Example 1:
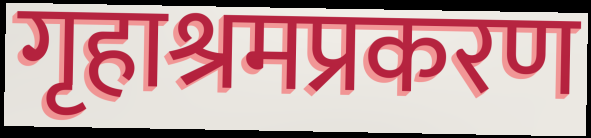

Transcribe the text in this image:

गृहाश्रमप्रकरण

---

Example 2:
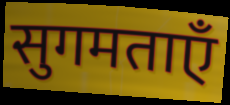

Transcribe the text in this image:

सुगमताएँ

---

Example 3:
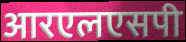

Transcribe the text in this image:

आरएलएसपी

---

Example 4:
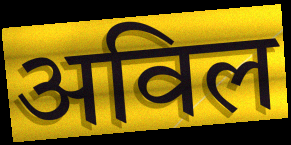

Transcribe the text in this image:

अविल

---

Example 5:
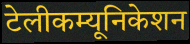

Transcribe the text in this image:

टेलीकम्यूनिकेशन